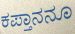
ಕಪ್ತಾನನೂ